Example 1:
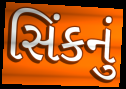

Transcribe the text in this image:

સિંકનું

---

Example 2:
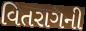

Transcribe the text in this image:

વિતરાગની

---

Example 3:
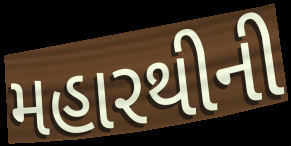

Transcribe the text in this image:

મહારથીની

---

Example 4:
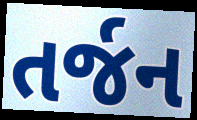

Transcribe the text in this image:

તર્જન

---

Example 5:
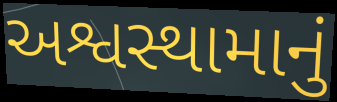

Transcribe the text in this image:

અશ્વસ્થામાનું